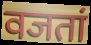
वजतां